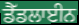
ਡੈੱਡਲਾਈਨ